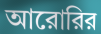
আরোরির